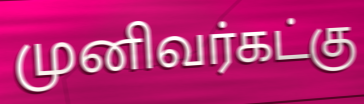
முனிவர்கட்கு